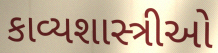
કાવ્યશાસ્ત્રીઓ